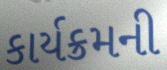
કાર્યક્રમની